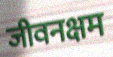
जीवनक्षम